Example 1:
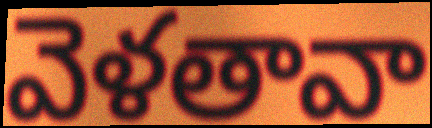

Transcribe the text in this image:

వెళతావా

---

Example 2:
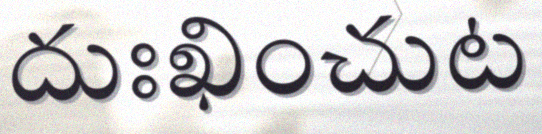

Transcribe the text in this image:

దుఃఖించుట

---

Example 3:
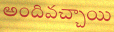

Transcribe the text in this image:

అందివచ్చాయి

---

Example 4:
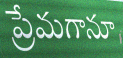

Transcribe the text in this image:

ప్రేమగానూ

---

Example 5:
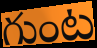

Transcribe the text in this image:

గుంట